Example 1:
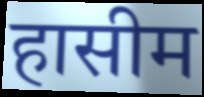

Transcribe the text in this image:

हासीम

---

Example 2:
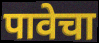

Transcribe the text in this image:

पावेचा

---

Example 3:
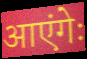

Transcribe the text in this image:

आएंगेः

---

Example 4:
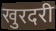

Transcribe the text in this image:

खुरदरी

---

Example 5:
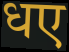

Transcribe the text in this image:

धए